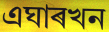
এঘাৰখন